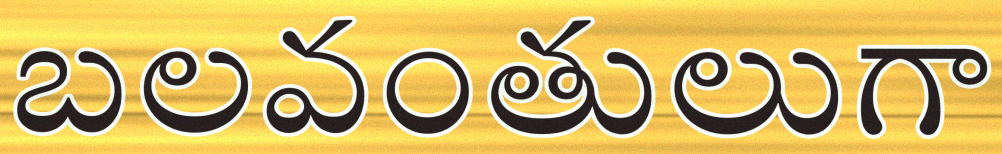
బలవంతులుగా